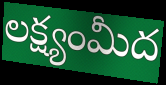
లక్ష్యంమీద